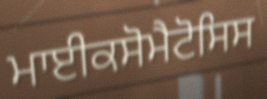
ਮਾਈਕਸੋਮੈਟੋਸਿਸ